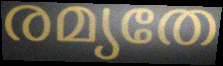
രമ്യതേ